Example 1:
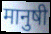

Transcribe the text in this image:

मानुषी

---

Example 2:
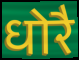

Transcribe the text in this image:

धोरै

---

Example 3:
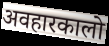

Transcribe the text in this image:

अवहारकालो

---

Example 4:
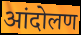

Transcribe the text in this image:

आंदोलण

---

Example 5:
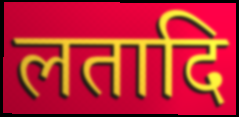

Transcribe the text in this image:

लतादि